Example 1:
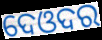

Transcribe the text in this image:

ଦେଓଦର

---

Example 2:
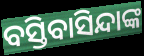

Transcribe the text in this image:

ବସ୍ତିବାସିନ୍ଦାଙ୍କ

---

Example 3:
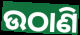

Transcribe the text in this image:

ଉଠାଣି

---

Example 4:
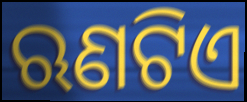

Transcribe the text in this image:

ଋଣଟିଏ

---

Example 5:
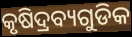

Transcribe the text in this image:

କୃଷିଦ୍ରବ୍ୟଗୁଡିକ